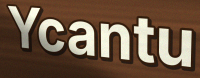
Ycantu